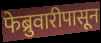
फेब्रुवारीपासून